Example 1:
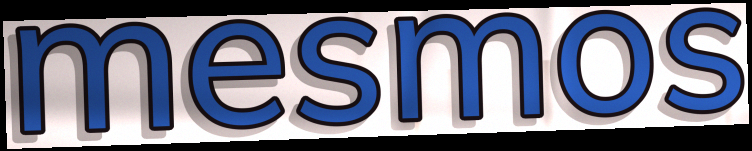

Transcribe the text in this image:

mesmos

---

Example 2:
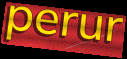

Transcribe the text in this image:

perur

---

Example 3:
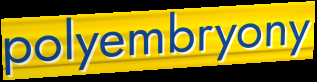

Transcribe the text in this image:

polyembryony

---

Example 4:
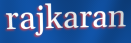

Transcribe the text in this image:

rajkaran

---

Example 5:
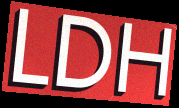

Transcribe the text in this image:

LDH